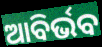
ଆବିର୍ଭବ